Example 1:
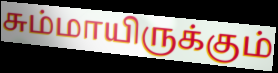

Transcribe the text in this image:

சும்மாயிருக்கும்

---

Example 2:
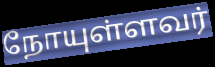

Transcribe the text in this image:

நோயுள்ளவர்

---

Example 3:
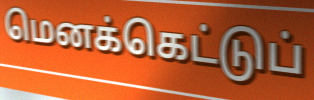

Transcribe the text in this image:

மெனக்கெட்டுப்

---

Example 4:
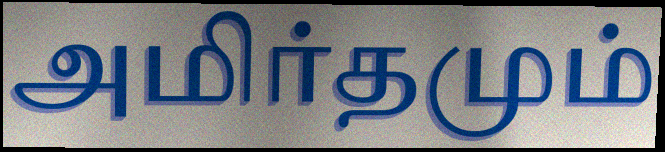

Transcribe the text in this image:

அமிர்தமும்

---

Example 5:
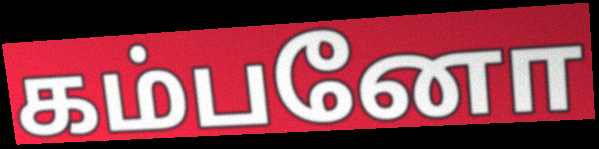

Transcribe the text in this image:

கம்பனோ